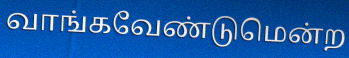
வாங்கவேண்டுமென்ற